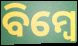
ବିମ୍ବେ